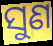
ସୁଣ